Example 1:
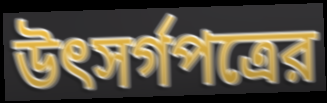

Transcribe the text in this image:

উৎসর্গপত্রের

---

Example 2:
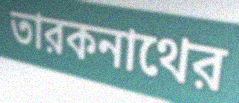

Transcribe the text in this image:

তারকনাথের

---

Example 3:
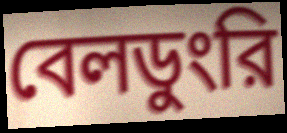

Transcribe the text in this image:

বেলডুংরি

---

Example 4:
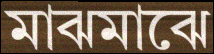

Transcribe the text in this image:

মাঝমাঝে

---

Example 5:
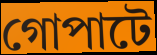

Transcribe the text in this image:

গোপাটে